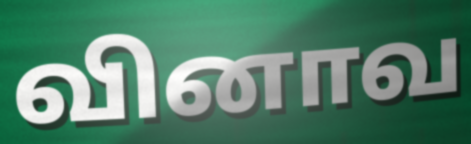
வினாவ